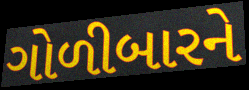
ગોળીબારને